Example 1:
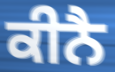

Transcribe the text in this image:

ਕੀਨੈ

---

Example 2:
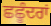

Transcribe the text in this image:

ਛਛੂੰਦਰਾਂ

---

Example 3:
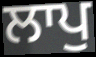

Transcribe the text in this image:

ਲਾਪੁ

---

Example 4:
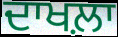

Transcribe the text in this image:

ਦਾਖਲ਼ਾ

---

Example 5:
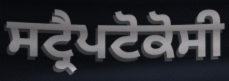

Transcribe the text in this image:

ਸਟ੍ਰੈਪਟੋਕੋਸੀ